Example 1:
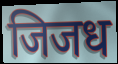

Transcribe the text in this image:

जिजध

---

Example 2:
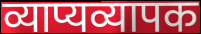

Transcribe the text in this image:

व्याप्यव्यापक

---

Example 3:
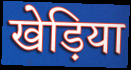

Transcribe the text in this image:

खेड़िया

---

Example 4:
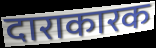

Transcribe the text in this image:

दाराकारक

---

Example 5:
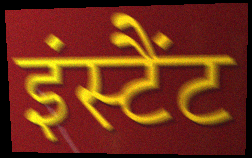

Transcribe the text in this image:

इंस्टैंट